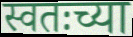
स्वतःच्या